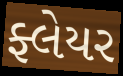
ફ્લેયર